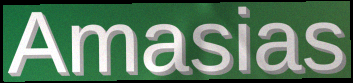
Amasias